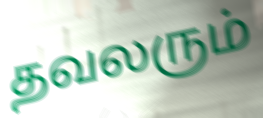
தவலரும்